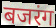
बजरंग